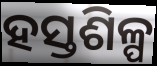
ହସ୍ତଶିଳ୍ପ